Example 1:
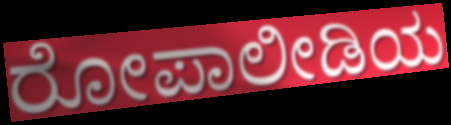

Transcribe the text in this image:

ರೋಪಾಲೀಡಿಯ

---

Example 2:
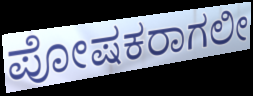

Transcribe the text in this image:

ಪೋಷಕರಾಗಲೀ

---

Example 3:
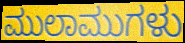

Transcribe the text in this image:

ಮುಲಾಮುಗಳು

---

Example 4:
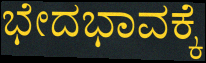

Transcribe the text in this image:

ಭೇದಭಾವಕ್ಕೆ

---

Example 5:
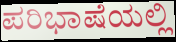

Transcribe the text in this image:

ಪರಿಭಾಷೆಯಲ್ಲಿ